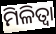
ମିଳିତ୍ଵା